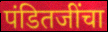
पंडितजींचा